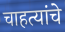
चाहत्यांचे